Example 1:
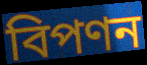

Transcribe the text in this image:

বিপণন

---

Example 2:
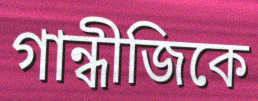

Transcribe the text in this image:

গান্ধীজিকে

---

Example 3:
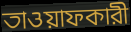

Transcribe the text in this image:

তাওয়াফকারী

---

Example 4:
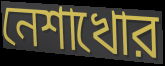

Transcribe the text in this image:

নেশাখোর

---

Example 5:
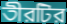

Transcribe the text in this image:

তীরটির